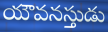
యౌవనస్తుడు